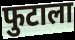
फुटाला